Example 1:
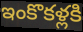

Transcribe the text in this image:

ఇంకొకళ్లకి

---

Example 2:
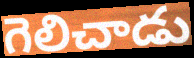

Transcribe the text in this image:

గెలిచాడు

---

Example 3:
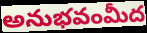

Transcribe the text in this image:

అనుభవంమీద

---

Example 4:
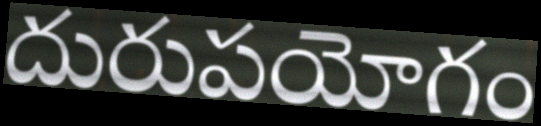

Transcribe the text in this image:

దురుపయోగం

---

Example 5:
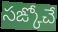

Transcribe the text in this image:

సఙ్కోచే